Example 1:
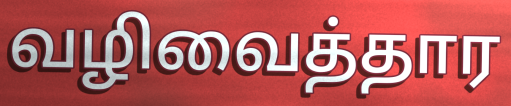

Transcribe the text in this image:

வழிவைத்தார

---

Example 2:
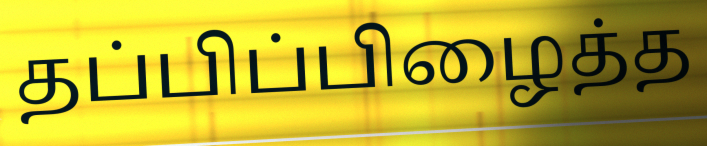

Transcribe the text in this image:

தப்பிப்பிழைத்த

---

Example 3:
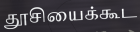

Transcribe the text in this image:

தூசியைக்கூட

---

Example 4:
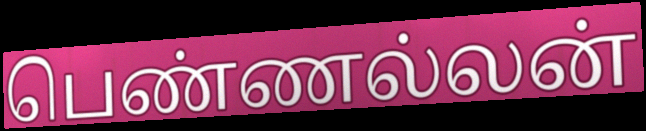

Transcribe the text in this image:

பெண்ணல்லன்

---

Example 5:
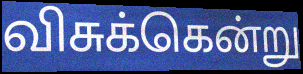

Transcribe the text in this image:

விசுக்கென்று